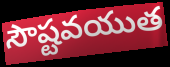
సౌష్టవయుత